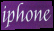
iphone